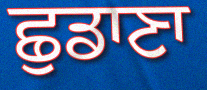
ਛੁਡਾਣਾ